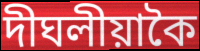
দীঘলীয়াকৈ